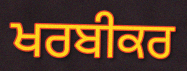
ਖਰਬੀਕਰ